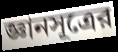
জ্ঞানসূত্রের